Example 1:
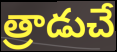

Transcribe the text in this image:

త్రాడుచే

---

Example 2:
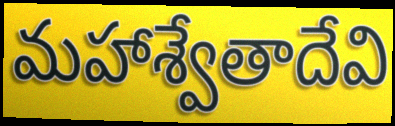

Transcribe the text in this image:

మహాశ్వేతాదేవి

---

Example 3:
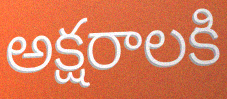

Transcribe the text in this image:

అక్షరాలకి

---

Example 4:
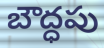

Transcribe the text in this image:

బౌద్ధపు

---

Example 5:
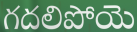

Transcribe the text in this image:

గదలిపోయె